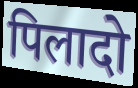
पिलादो